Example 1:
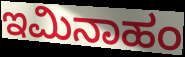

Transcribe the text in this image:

ಇಮಿನಾಹಂ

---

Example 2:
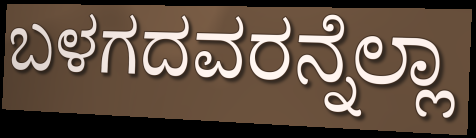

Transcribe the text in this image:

ಬಳಗದವರನ್ನೆಲ್ಲಾ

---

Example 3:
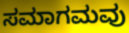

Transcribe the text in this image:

ಸಮಾಗಮವು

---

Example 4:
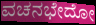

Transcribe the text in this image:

ವಚನಭೇದೋ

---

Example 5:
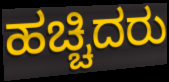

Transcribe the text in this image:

ಹಚ್ಚಿದರು